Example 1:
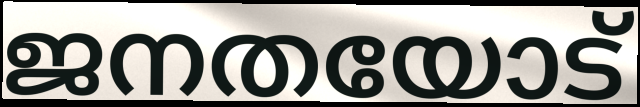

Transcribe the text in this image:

ജനതയോട്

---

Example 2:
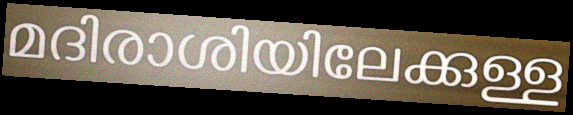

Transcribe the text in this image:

മദിരാശിയിലേക്കുള്ള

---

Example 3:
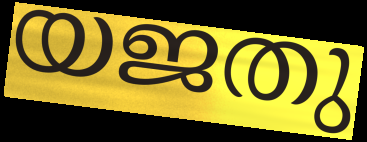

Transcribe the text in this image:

യജതു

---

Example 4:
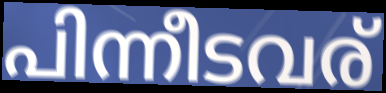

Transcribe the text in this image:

പിന്നീടവര്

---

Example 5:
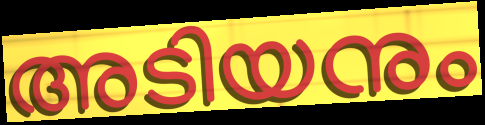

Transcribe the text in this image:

അടിയനും